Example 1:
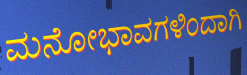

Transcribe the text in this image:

ಮನೋಭಾವಗಳಿಂದಾಗಿ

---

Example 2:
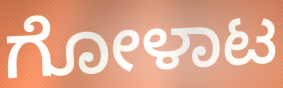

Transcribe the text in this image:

ಗೋಳಾಟ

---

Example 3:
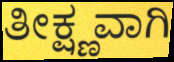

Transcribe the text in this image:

ತೀಕ್ಷ್ಣವಾಗಿ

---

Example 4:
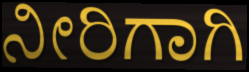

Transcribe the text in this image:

ನೀರಿಗಾಗಿ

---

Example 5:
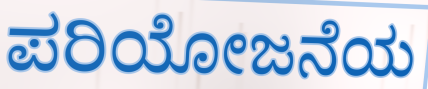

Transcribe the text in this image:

ಪರಿಯೋಜನೆಯ